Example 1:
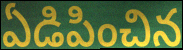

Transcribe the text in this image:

ఏడిపించిన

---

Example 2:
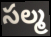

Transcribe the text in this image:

సల్మ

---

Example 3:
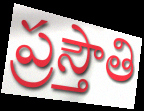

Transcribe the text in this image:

ప్రస్తౌతి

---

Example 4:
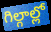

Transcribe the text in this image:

గిల్గాల్లో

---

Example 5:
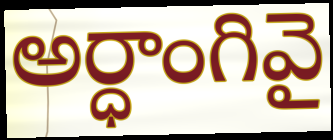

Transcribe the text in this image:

అర్ధాంగివై